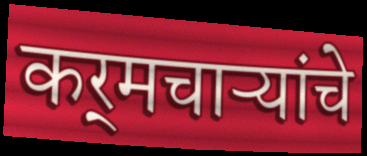
कर्मचाऱ्यांचे